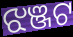
ଝଞ୍ଜଟ